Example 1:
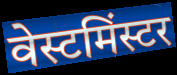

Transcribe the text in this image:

वेस्‍टमिंस्‍टर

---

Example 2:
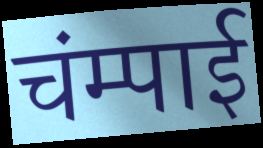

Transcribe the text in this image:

चंम्पाई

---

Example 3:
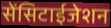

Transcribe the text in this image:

सेंसिटाईजेशन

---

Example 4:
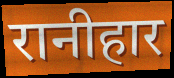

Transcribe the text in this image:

रानीहार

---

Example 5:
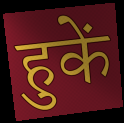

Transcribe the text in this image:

हुकें